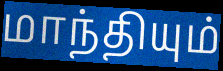
மாந்தியும்